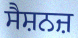
ਸੈਸ਼ਨਜ਼